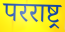
परराष्ट्र